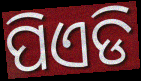
ପିଏଡି